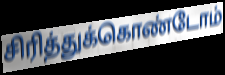
சிரித்துக்கொண்டோம்